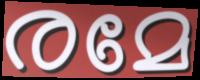
രമേ